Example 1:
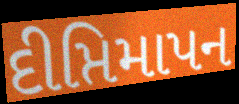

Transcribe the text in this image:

દીપ્તિમાપન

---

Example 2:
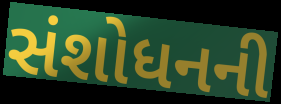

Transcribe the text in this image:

સંશોધનની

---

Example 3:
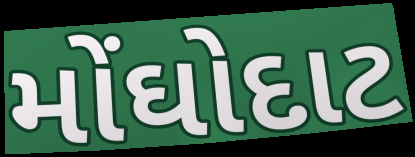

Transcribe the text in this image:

મોંઘોદાટ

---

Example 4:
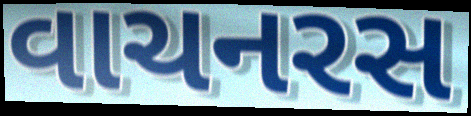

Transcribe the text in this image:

વાચનરસ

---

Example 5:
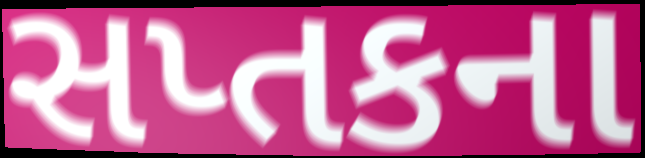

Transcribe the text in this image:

સપ્તકના